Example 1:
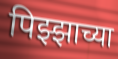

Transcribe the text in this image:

पिझ्झाच्या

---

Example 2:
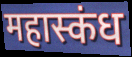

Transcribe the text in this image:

महास्कंध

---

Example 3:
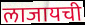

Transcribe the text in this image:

लाजायची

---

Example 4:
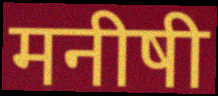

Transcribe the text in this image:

मनीषी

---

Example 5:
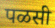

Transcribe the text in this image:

पळसी